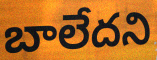
బాలేదని